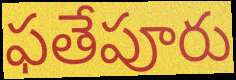
ఫతేపూరు